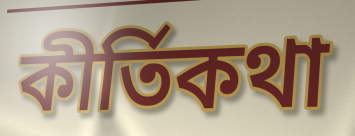
কীর্তিকথা